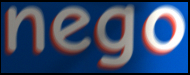
nego